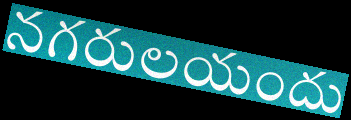
నగరులయందు